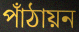
পাঁঠায়ন